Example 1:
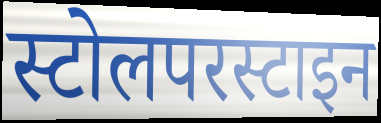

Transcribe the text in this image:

स्टोलपरस्टाइन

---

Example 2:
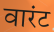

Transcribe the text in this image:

वारंट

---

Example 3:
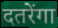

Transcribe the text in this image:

दतरेंगा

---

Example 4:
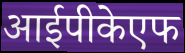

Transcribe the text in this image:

आईपीकेएफ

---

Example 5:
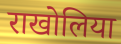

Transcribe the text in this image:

राखोलिया